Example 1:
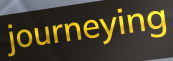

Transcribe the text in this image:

journeying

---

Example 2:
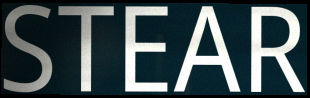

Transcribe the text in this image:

STEAR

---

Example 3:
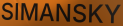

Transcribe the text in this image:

SIMANSKY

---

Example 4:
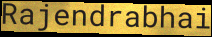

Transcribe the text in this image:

Rajendrabhai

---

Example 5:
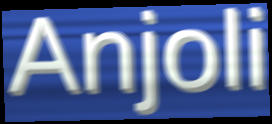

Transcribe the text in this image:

Anjoli